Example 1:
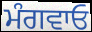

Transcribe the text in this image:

ਮੰਗਵਾਓ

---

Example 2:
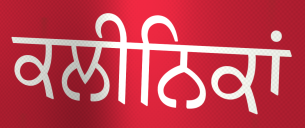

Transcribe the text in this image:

ਕਲੀਨਿਕਾਂ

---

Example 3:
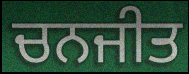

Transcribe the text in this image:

ਚਨਜੀਤ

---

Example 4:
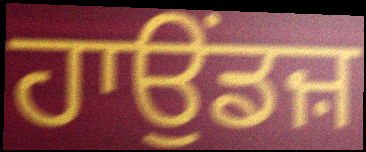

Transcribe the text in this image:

ਹਾਉਂਡਜ਼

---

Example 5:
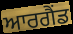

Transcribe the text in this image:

ਆਰਗੈਂਡ